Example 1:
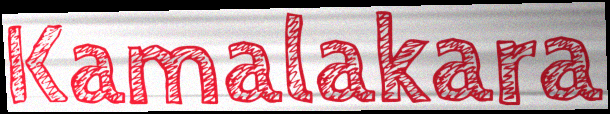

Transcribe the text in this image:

Kamalakara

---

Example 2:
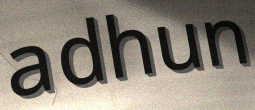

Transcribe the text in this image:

adhun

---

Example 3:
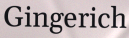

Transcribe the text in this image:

Gingerich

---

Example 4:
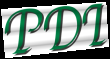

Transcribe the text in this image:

PDI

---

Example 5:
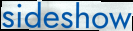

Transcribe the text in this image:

sideshow